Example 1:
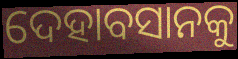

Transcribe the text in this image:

ଦେହାବସାନକୁ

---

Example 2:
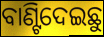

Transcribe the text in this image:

ବାଣ୍ଟିଦେଇଛୁ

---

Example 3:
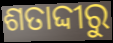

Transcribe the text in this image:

ଶତାଦ୍ଦୀରୁ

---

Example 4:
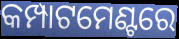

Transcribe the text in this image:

କମ୍ପାଟମେଣ୍ଟରେ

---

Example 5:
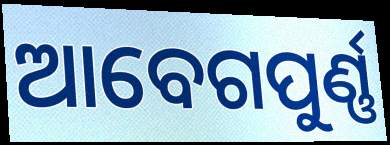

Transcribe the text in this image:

ଆବେଗପୁର୍ଣ୍ଣ